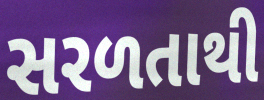
સરળતાથી